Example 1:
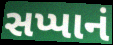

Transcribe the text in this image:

સપ્પાનં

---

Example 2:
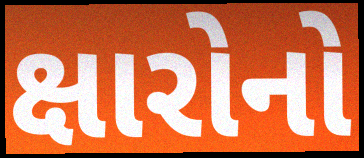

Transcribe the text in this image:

ક્ષારોનો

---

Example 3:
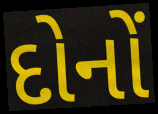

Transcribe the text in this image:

દોનોં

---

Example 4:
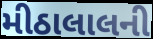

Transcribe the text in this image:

મીઠાલાલની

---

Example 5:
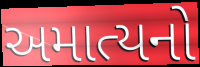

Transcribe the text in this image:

અમાત્યનો